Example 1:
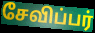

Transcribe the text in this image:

சேவிப்பர்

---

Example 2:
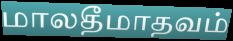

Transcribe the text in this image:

மாலதீமாதவம்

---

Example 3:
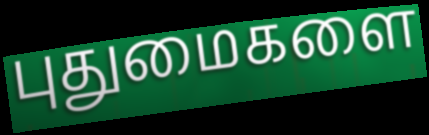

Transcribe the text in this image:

புதுமைகளை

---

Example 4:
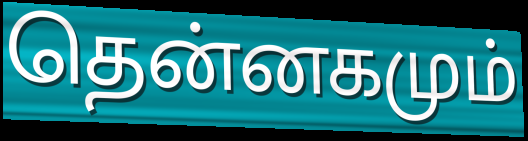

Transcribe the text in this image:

தென்னகமும்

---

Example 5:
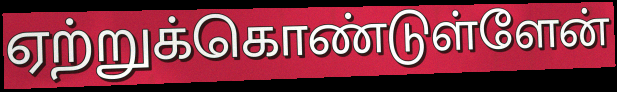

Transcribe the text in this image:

ஏற்றுக்கொண்டுள்ளேன்